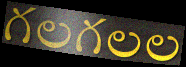
గలగలల